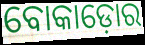
ବୋକାଡ଼ୋର